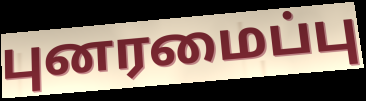
புனரமைப்பு